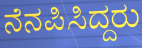
ನೆನಪಿಸಿದ್ದರು